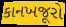
કાનખજૂરો